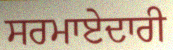
ਸਰਮਾਏਦਾਰੀ